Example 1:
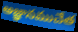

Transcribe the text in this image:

అజ్ఞానముచేత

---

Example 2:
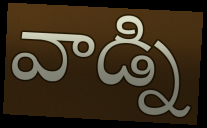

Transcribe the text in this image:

వాడ్ని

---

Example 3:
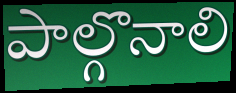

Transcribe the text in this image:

పాల్గొనాలి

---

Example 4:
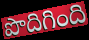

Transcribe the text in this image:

పొదిగింది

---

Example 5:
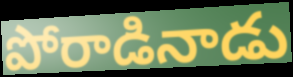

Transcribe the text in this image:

పోరాడినాడు